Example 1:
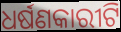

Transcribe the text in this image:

ଧର୍ଷଣକାରୀଟି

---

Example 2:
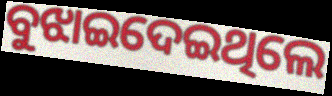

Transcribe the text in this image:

ବୁଝାଇଦେଇଥିଲେ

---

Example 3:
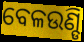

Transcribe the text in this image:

ବେଳଉଣ୍ଡି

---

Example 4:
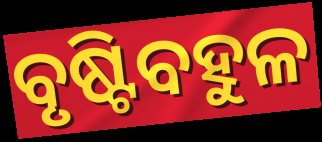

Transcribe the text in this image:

ବୃଷ୍ଟିବହୁଳ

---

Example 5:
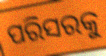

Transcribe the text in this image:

ପରିସରକୁ